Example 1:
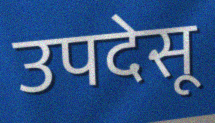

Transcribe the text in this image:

उपदेसू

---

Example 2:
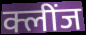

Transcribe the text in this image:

क्लींज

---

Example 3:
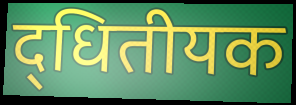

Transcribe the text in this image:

द्धितीयक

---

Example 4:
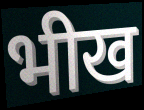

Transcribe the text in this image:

भीख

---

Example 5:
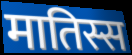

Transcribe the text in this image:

मातिस्स